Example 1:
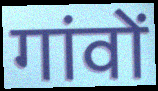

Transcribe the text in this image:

गांवों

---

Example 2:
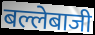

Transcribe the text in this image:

बल्लेबाजी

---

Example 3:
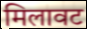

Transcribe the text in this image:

मिलावट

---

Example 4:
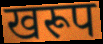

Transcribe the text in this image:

खरूप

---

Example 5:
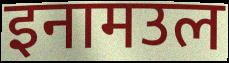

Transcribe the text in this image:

इनामउल